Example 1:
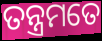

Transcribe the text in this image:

ତନ୍ତ୍ରମତେ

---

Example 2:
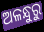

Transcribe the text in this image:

ଅଳନ୍ଧୁରୁ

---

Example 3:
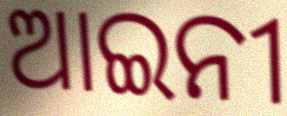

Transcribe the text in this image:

ଆଇନୀ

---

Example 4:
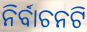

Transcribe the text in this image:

ନିର୍ବାଚନଟି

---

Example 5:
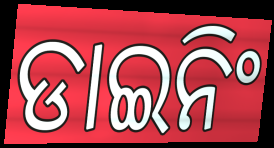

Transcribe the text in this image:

ଡାଇନିଂ